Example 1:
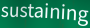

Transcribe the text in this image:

sustaining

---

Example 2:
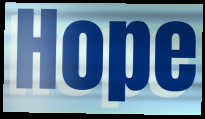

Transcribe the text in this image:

Hope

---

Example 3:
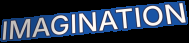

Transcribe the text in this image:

IMAGINATION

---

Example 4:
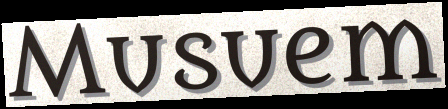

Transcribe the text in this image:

Musuem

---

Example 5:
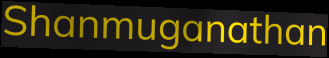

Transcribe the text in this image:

Shanmuganathan